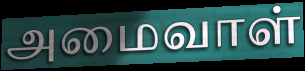
அமைவாள்